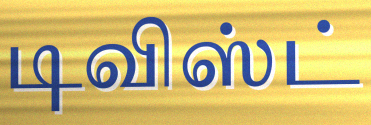
டிவிஸ்ட்